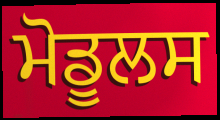
ਮੋਡੂਲਸ